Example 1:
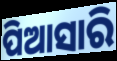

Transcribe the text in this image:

ପିଆସାରି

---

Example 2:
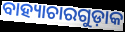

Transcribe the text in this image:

ବାହ୍ୟାଚାରଗୁଡ଼ାକ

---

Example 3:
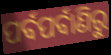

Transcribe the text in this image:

ପର୍ବପର୍ବାଣିରୁ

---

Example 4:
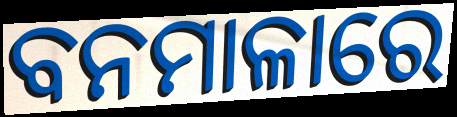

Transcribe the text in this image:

ବନମାଳାରେ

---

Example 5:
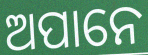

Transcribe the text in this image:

ଅପାନେ